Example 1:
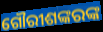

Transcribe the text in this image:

ଗୌରୀଶଙ୍କରଙ୍କ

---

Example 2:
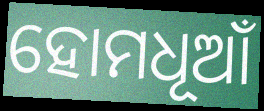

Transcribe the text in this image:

ହୋମଧୂଆଁ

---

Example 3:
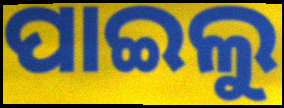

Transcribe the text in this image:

ପାଇଲୁ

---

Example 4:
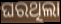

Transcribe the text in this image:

ଘରଥିଲା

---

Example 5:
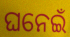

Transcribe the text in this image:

ଘନେଇଁ